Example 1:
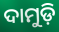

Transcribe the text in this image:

ଦାମୁଡ଼ି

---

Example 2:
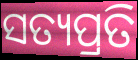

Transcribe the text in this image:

ସତ୍ୟପ୍ରତି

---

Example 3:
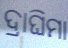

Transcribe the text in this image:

ଦ୍ରାଘିମା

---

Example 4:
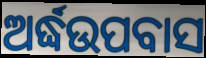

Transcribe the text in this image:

ଅର୍ଦ୍ଧଉପବାସ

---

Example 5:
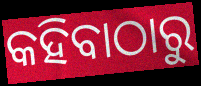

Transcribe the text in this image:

କହିବାଠାରୁ